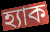
হ্যাক